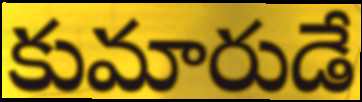
కుమారుడే